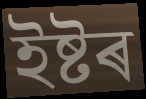
ইষ্টৰ